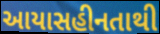
આયાસહીનતાથી